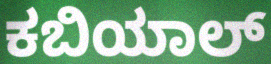
ಕಬಿಯಾಲ್